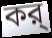
কর্